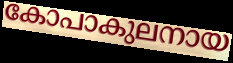
കോപാകുലനായ